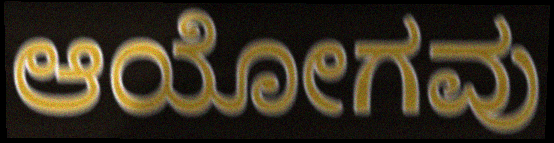
ಆಯೋಗವು